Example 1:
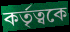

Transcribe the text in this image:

কর্তৃত্বকে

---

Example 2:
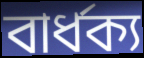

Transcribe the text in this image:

বার্ধক্য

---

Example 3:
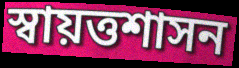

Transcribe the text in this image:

স্বায়ত্তশাসন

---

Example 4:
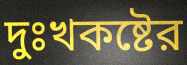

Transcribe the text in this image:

দুঃখকষ্টের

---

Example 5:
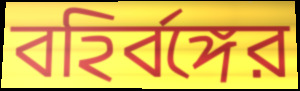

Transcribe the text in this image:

বহির্বঙ্গের